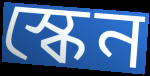
স্কেন